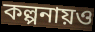
কল্পনায়ও